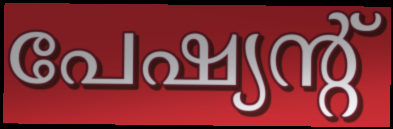
പേഷ്യന്റ്